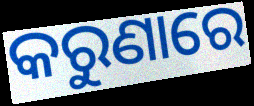
କରୁଣାରେ